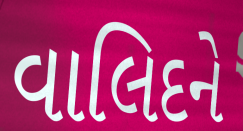
વાલિદને